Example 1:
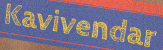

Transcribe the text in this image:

Kavivendar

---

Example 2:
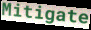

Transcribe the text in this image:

Mitigate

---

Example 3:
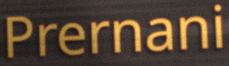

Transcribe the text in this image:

Prernani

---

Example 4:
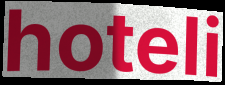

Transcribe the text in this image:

hoteli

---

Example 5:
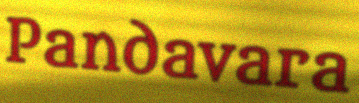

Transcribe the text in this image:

Pandavara